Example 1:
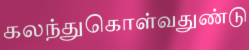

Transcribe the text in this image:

கலந்துகொள்வதுண்டு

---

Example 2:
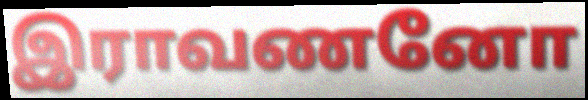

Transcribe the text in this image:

இராவணனோ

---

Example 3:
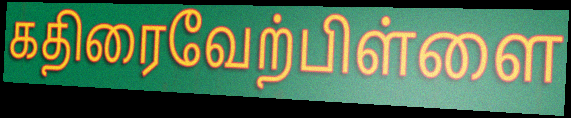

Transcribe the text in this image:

கதிரைவேற்பிள்ளை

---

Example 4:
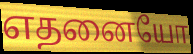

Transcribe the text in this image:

எதனையோ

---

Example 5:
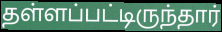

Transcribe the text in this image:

தள்ளப்பட்டிருந்தார்